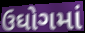
ઉઘોગમાં